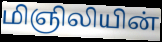
மிஞிலியின்